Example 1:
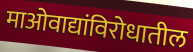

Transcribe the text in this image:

माओवाद्यांविरोधातील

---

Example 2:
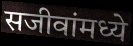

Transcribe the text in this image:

सजीवांमध्ये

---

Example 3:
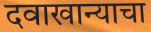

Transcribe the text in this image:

दवाखान्याचा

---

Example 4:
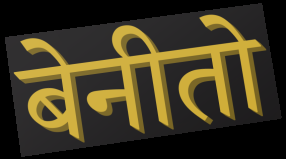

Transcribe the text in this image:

बेनीतो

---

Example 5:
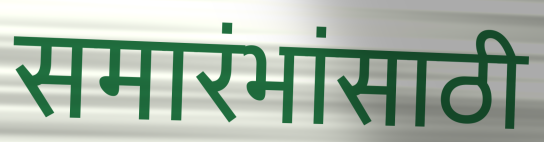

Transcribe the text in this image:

समारंभांसाठी